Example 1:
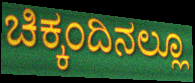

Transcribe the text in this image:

ಚಿಕ್ಕಂದಿನಲ್ಲೂ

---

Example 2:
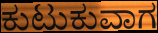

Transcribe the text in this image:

ಕುಟುಕುವಾಗ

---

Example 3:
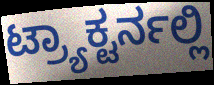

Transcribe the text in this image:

ಟ್ರ್ಯಾಕ್ಟರ್ನಲ್ಲಿ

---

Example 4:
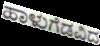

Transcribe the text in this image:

ಹಾಳುಗೆಡವಿದ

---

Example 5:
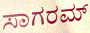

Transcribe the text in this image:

ಸಾಗರಮ್